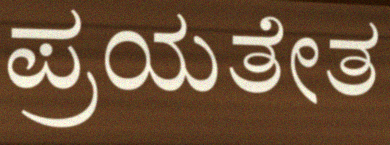
ಪ್ರಯತೇತ